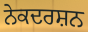
ਨੇਕਦਰਸ਼ਨ